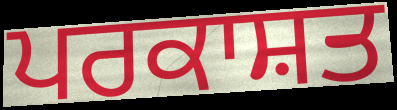
ਪਰਕਾਸ਼ਤ